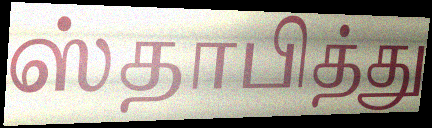
ஸ்தாபித்து